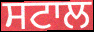
ਸਟਾਲ